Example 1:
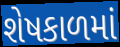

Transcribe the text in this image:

શેષકાળમાં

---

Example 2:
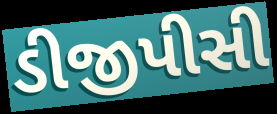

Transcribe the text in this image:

ડીજીપીસી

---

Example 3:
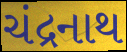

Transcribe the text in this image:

ચંદ્રનાથ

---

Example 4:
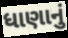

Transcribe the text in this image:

ધાણાનું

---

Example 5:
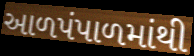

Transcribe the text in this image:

આળપંપાળમાંથી